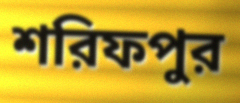
শরিফপুর